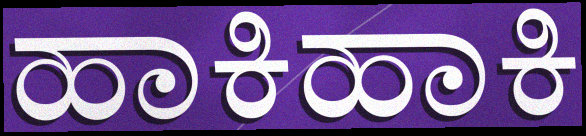
ಹಾಕಿಹಾಕಿ